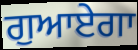
ਗੁਆਏਗਾ